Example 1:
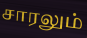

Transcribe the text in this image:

சாரலும்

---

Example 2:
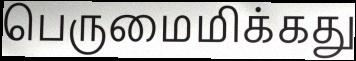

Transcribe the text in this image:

பெருமைமிக்கது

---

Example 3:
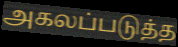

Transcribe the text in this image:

அகலப்படுத்த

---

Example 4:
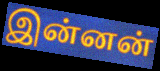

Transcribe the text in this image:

இன்னன்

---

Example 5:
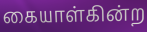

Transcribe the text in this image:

கையாள்கின்ற